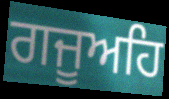
ਗਜੂਅਹਿ